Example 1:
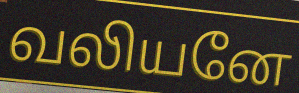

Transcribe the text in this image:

வலியனே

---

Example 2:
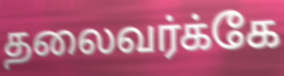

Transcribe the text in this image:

தலைவர்க்கே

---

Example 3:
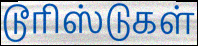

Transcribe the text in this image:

டூரிஸ்டுகள்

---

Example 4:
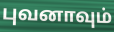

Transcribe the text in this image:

புவனாவும்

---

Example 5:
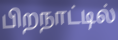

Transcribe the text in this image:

பிறநாட்டில்